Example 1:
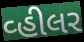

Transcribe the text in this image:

વ્હીલર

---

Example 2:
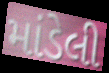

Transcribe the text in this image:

માંડેલી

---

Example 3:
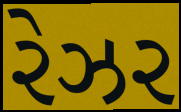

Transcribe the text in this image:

રેઝર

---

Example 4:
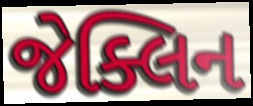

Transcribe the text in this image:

જેક્લિન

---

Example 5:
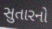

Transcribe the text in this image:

સુતારનો